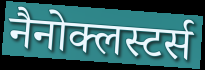
नैनोक्लस्टर्स